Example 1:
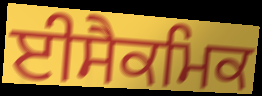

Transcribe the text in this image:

ਈਸੈਕਮਿਕ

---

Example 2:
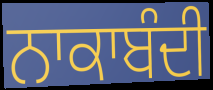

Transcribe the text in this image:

ਨਾਕਾਬੰਦੀ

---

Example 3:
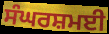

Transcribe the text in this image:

ਸੰਘਰਸ਼ਮਈ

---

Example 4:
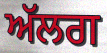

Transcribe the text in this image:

ਅੱਲਗ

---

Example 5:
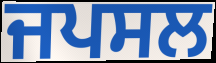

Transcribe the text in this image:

ਜਪਸਲ